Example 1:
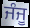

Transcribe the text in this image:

ਜੰਜੂ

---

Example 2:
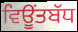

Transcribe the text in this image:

ਵਿਊਂਤਬੱਧ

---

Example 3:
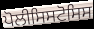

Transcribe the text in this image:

ਪੋਲੀਸਿਸਟੋਸਿਸ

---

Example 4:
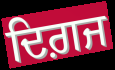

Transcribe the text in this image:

ਦਿਗ਼ਜ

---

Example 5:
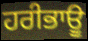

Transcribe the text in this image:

ਹਰੀਭਾਊ